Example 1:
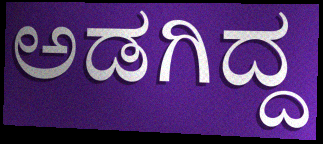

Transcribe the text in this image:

ಅಡಗಿದ್ದ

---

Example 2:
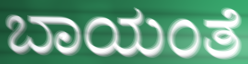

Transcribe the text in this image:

ಬಾಯಂತೆ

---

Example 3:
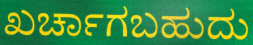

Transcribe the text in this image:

ಖರ್ಚಾಗಬಹುದು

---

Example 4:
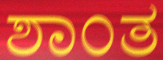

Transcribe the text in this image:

ಶಾಂತ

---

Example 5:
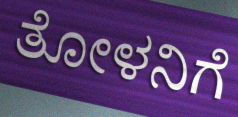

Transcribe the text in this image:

ತೋಳನಿಗೆ